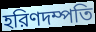
হরিণদম্পতি